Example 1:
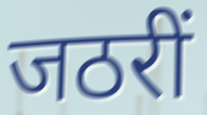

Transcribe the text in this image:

जठरीं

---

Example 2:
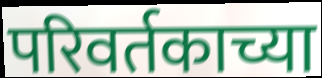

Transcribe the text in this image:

परिवर्तकाच्या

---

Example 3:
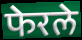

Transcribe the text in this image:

फेरले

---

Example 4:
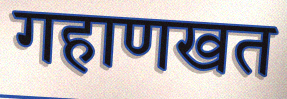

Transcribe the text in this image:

गहाणखत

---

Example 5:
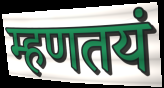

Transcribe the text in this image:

म्हणतयं